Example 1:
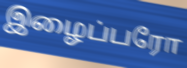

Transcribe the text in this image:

இழைப்பரோ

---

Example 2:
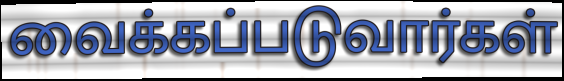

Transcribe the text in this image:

வைக்கப்படுவார்கள்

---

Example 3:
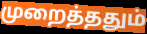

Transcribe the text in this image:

முறைத்ததும்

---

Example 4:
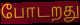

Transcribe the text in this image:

போடறது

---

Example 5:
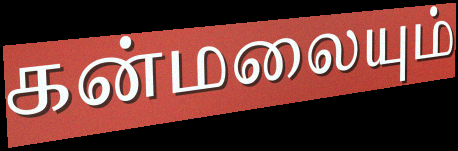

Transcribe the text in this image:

கன்மலையும்